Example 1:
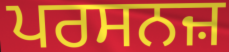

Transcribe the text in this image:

ਪਰਸਨਜ਼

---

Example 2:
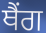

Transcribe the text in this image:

ਥੈਂਗ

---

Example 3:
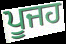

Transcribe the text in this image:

ਪੂਜਹ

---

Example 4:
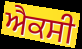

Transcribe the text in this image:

ਐਕਸੀ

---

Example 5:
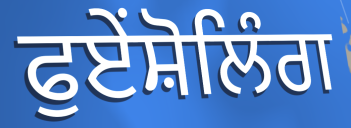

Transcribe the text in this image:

ਫੁਏਂਸ਼ੋਲਿੰਗ